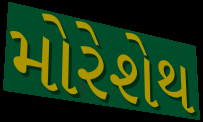
મોરેશેથ